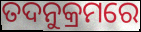
ତଦନୁକ୍ରମରେ